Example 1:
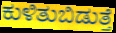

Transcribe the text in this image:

ಕುಳಿತುಬಿಡುತ್ತೆ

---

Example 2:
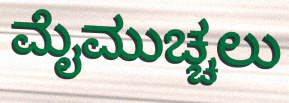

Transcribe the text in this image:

ಮೈಮುಚ್ಚಲು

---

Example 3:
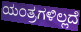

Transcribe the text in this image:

ಯಂತ್ರಗಳಿಲ್ಲದೆ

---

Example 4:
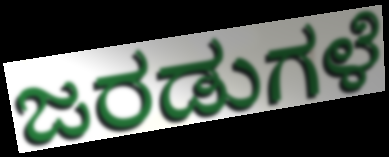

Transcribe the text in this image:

ಜರಡುಗಳೆ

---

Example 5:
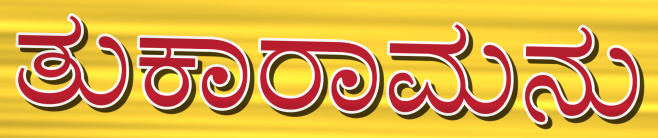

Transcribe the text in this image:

ತುಕಾರಾಮನು